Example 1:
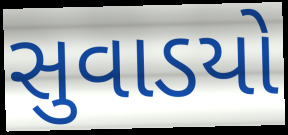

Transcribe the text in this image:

સુવાડયો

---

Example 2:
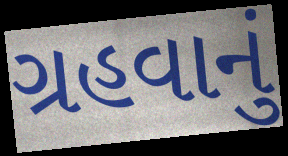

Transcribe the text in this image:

ગ્રહવાનું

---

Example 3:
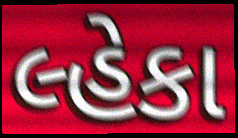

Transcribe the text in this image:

લ્હેકા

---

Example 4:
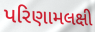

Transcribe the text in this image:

પરિણામલક્ષી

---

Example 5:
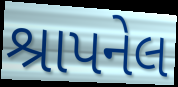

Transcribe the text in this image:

શ્રાપનેલ